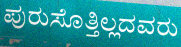
ಪುರುಸೊತ್ತಿಲ್ಲದವರು